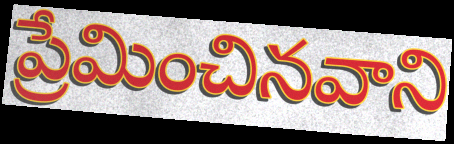
ప్రేమించినవాని